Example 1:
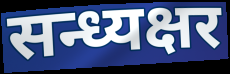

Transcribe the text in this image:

सन्ध्यक्षर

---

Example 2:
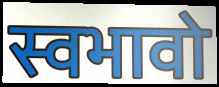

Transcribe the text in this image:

स्वभावो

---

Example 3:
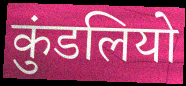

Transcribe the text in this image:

कुंडलियो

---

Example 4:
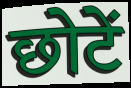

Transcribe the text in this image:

छोटें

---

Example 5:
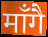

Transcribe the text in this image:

माँगै